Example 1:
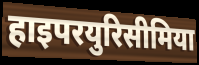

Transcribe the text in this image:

हाइपरयुरिसीमिया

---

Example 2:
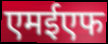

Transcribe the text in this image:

एमईएफ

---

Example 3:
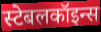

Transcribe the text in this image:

स्टेबलकॉइन्स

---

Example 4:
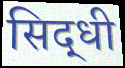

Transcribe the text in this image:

सिद्धी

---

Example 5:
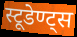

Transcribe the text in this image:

स्टूडेण्ट्स